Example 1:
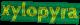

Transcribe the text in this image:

xylopyra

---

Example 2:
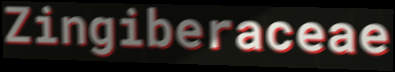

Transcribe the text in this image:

Zingiberaceae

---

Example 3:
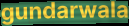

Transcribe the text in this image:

gundarwala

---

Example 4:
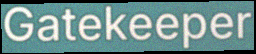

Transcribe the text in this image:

Gatekeeper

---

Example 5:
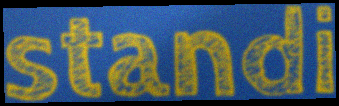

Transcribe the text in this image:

standi